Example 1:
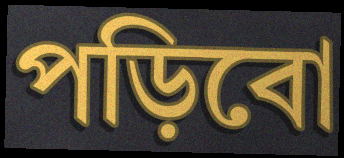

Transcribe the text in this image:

পড়িবো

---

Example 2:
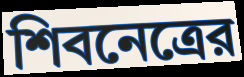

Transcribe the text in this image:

শিবনেত্রের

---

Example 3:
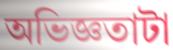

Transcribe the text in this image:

অভিজ্ঞতাটা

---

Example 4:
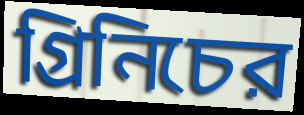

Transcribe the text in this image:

গ্রিনিচের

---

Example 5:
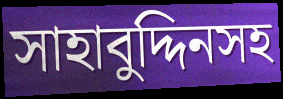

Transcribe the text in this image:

সাহাবুদ্দিনসহ